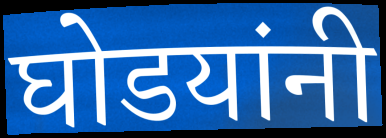
घोडयांनी